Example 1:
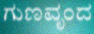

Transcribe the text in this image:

ಗುಣವೃಂದ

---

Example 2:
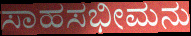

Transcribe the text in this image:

ಸಾಹಸಭೀಮನು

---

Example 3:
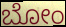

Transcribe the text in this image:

ಬೋಂ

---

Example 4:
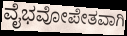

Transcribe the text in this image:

ವೈಭವೋಪೇತವಾಗಿ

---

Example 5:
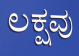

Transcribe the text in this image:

ಲಕ್ಷವು